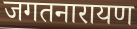
जगतनारायण